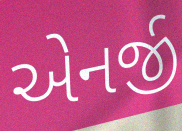
એનર્જી